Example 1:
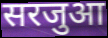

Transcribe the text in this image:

सरजुआ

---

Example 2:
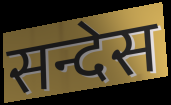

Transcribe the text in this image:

सन्देस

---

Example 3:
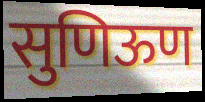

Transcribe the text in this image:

सुणिऊण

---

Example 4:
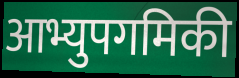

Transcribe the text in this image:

आभ्युपगमिकी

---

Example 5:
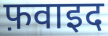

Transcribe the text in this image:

फ़वाइद